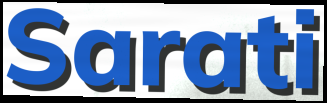
Sarati